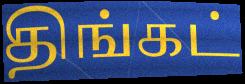
திங்கட்